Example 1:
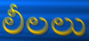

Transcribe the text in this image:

లీలలు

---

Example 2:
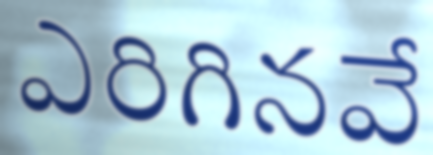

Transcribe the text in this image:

ఎరిగినవే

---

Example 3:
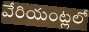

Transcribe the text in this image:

వేరియంట్లలో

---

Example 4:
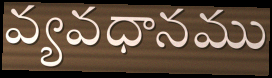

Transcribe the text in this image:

వ్యవధానము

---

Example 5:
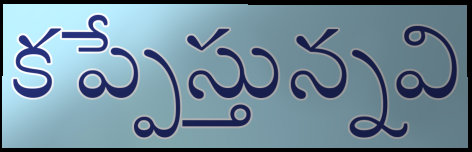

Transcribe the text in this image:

కప్పేస్తున్నవి